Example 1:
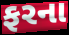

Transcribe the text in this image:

ફરના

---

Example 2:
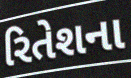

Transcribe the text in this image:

રિતેશના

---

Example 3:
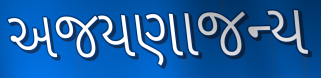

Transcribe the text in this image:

અજયણાજન્ય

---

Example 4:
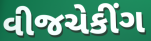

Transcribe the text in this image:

વીજચેકીંગ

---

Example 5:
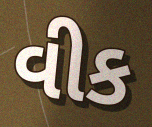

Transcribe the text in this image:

વીક